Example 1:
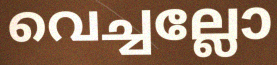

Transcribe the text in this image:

വെച്ചല്ലോ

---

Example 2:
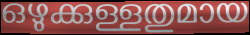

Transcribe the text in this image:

ഒഴുക്കുള്ളതുമായ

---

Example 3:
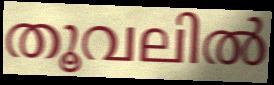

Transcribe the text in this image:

തൂവലിൽ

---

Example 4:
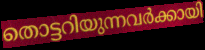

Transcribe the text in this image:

തൊട്ടറിയുന്നവർക്കായി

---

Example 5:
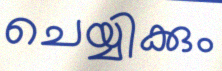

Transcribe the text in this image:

ചെയ്യിക്കും